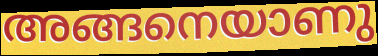
അങ്ങനെയാണു